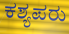
ಕಶ್ಯಪರು